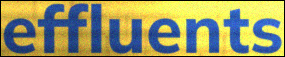
effluents